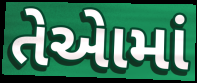
તેએામાં